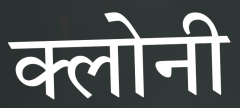
क्लोनी